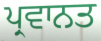
ਪ੍ਰਵਾਨਤ